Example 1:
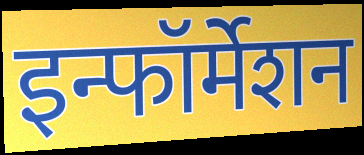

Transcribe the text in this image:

इन्फॉर्मेशन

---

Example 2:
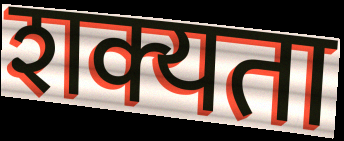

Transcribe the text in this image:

शक्‍यता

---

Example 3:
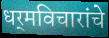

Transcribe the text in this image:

धर्मविचारांचे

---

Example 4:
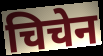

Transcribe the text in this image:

चिचेन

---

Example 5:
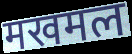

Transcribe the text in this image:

मखमल